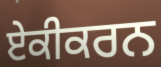
ਏਕੀਕਰਨ